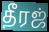
தீரஜ்